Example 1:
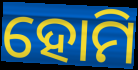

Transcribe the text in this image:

ହୋମି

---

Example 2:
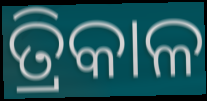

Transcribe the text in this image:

ତ୍ରିକାଳ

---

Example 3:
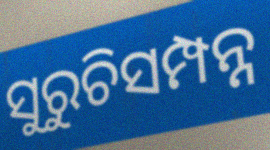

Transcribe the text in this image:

ସୁରୁଚିସମ୍ପନ୍ନ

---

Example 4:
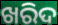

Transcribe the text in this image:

ଖରିଦ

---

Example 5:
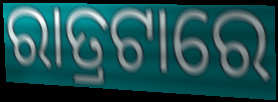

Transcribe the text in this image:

ରାତ୍ରଟାରେ